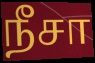
நீசா